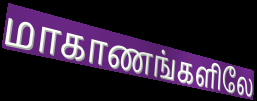
மாகாணங்களிலே